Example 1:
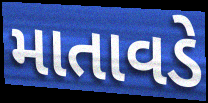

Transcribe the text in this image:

માતાવડે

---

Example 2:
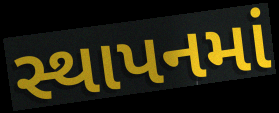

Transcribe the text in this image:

સ્થાપનમાં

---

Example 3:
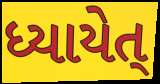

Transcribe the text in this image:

ધ્યાયેત્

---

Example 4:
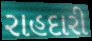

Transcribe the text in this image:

રાહદારી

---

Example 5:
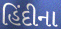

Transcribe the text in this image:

હિંદીના